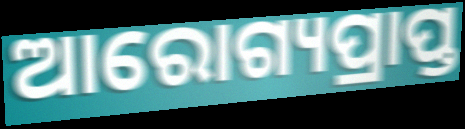
ଆରୋଗ୍ୟପ୍ରାପ୍ତ